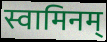
स्वामिनम्